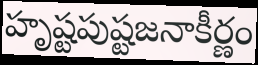
హృష్టపుష్టజనాకీర్ణం